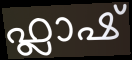
ഫ്ലാഷ്